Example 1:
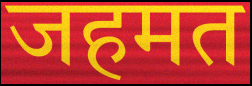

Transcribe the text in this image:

जहमत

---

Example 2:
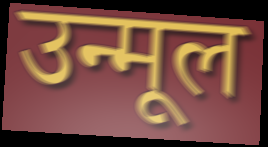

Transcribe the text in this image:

उन्मूल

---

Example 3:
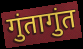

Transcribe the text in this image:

गुंतागुंत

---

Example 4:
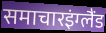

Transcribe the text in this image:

समाचारइंग्लैंड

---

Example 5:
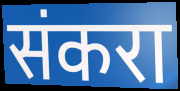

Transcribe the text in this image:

संकरा